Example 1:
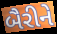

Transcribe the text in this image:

બૈરીને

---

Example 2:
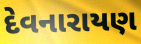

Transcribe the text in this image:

દેવનારાયણ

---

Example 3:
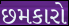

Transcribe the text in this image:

છમકારો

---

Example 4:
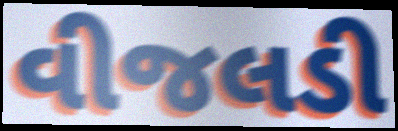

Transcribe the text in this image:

વીજલડી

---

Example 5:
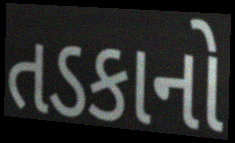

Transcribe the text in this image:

તડકાનો